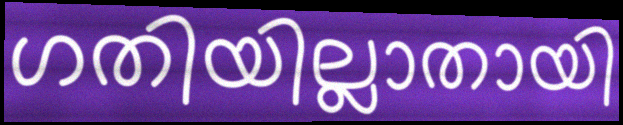
ഗതിയില്ലാതായി